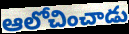
ఆలోచించాడు